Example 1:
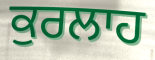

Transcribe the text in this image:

ਕੁਰਲਾਹ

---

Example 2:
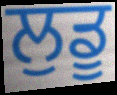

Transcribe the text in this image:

ਲੁਡੂ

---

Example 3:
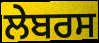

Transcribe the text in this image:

ਲੇਬਰਸ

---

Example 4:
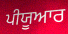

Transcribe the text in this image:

ਪੀਯੂਆਰ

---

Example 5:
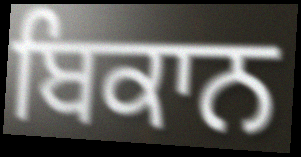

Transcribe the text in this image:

ਬਿਕਾਨ